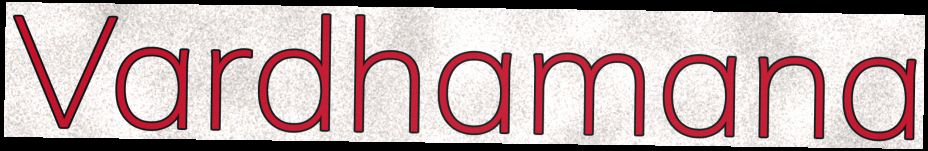
Vardhamana